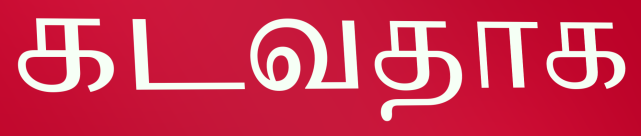
கடவதாக